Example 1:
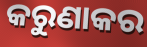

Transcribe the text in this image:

କରୁଣାକର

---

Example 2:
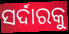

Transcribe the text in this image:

ସର୍ଦାରକୁ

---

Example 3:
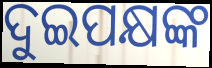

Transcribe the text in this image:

ଦୁଇପକ୍ଷଙ୍କ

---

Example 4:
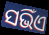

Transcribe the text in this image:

ସଭିଁଏ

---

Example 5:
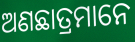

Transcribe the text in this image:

ଅଣଛାତ୍ରମାନେ